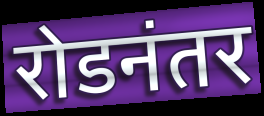
रोडनंतर